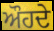
ਔਹਦੇ